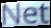
Net